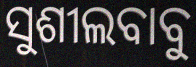
ସୁଶୀଲବାବୁ